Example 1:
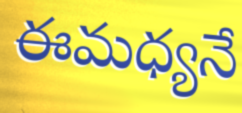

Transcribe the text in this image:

ఈమధ్యనే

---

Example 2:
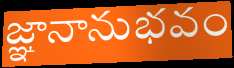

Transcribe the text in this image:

జ్ఞానానుభవం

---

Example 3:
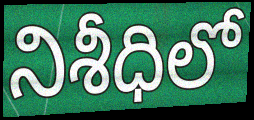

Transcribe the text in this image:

నిశీధిలో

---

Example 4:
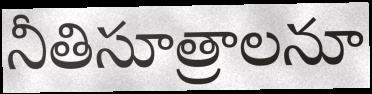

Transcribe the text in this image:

నీతిసూత్రాలనూ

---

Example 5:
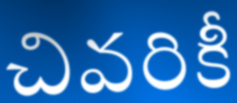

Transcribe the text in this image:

చివరికీ